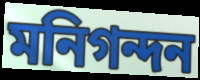
মনিগন্দন